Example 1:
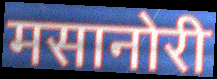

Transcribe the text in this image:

मसानोरी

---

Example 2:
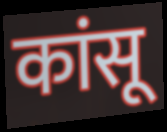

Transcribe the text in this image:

कांसू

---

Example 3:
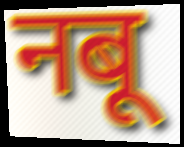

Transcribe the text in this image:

नबू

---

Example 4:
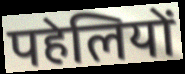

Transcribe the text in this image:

पहेलियों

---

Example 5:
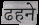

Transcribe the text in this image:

ढहने